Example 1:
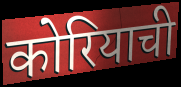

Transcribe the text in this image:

कोरियाची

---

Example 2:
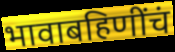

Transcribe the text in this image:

भावाबहिणींचं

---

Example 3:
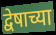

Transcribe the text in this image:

द्वेषाच्या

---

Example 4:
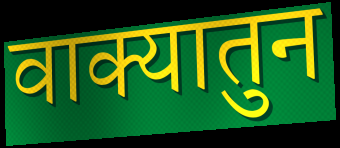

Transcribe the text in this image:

वाक्यातुन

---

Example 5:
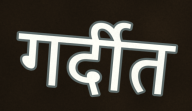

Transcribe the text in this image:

गर्दीत